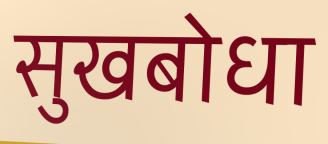
सुखबोधा